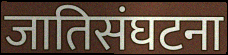
जातिसंघटना